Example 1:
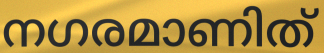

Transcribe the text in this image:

നഗരമാണിത്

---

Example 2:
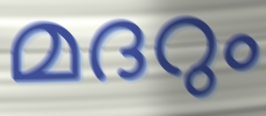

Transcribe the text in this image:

മദറും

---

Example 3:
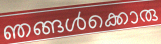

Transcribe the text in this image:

ഞങ്ങൾക്കൊരു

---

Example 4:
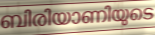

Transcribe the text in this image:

ബിരിയാണിയുടെ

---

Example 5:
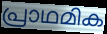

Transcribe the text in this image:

പ്രാഥമിക